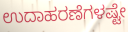
ಉದಾಹರಣೆಗಳಷ್ಟೇ